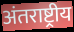
अंतराष्ट्रीय